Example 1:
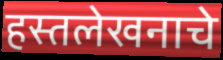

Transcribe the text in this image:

हस्तलेखनाचे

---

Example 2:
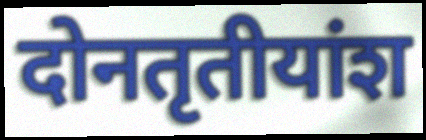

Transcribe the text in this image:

दोनतृतीयांश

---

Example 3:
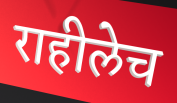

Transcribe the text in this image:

राहीलेच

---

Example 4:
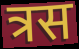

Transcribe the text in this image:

त्रस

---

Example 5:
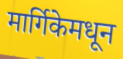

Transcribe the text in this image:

मार्गिकेमधून